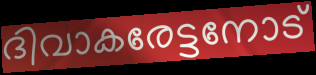
ദിവാകരേട്ടനോട്